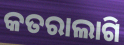
କତରାଲାଗି